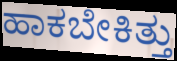
ಹಾಕಬೇಕಿತ್ತು